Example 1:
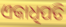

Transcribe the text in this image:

ଏକାଧିପତି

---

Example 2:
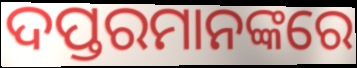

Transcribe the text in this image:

ଦପ୍ତରମାନଙ୍କରେ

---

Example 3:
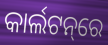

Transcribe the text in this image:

କାର୍ଲଟନ୍‌ରେ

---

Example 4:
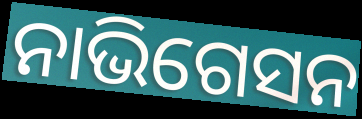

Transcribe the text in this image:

ନାଭିଗେସନ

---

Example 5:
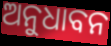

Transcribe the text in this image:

ଅନୁଧାବନ